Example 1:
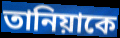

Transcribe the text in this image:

তানিয়াকে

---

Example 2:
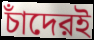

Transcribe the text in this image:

চাঁদেরই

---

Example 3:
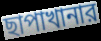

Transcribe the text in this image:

ছাপাখানার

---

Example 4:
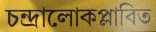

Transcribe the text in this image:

চন্দ্রালোকপ্লাবিত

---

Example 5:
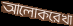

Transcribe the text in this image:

আলোকরেখা